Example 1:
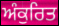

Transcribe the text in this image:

ਅੰਕੁਰਿਤ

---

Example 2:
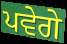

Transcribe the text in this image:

ਪਵੇਗੇ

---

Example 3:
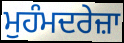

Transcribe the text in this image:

ਮੁਹੰਮਦਰੇਜ਼ਾ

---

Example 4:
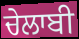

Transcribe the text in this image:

ਚੇਲਾਬੀ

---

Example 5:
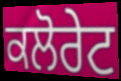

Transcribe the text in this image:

ਕਲੋਰੇਟ